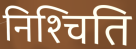
निश्चिति